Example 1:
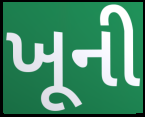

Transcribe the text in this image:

ખૂની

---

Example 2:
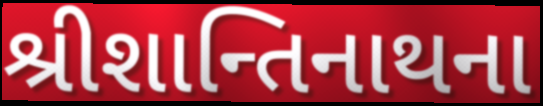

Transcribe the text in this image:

શ્રીશાન્તિનાથના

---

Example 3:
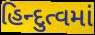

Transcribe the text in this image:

હિન્દુત્વમાં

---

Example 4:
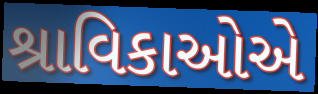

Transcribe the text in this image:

શ્રાવિકાઓએ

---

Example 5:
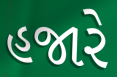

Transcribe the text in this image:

હજારે